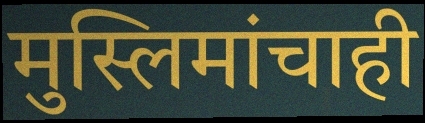
मुस्लिमांचाही